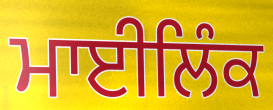
ਮਾਈਲਿੰਕ